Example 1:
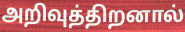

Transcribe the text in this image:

அறிவுத்திறனால்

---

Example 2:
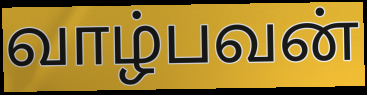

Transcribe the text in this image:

வாழ்பவன்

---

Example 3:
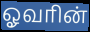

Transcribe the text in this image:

ஓவரின்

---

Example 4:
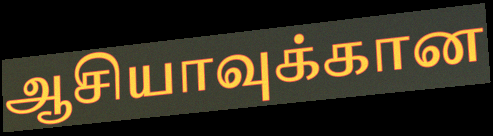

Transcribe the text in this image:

ஆசியாவுக்கான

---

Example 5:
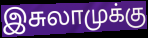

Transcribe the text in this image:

இசுலாமுக்கு